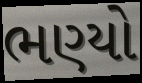
ભણ્યો